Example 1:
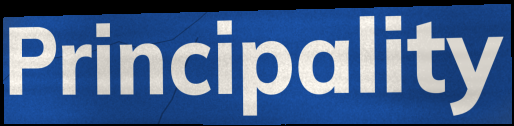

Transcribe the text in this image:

Principality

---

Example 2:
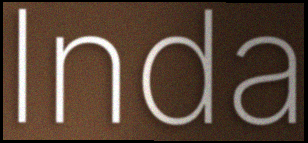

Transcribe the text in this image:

Inda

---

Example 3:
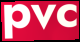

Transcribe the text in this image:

pvc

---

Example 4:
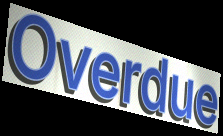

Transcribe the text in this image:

Overdue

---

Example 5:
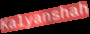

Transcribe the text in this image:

Kalyanshah